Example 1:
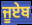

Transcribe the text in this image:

ਜੂਏਬ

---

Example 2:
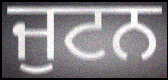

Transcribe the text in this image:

ਜੁਟਨ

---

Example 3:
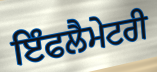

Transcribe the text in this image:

ਇੰਫਲੈਮੇਟਰੀ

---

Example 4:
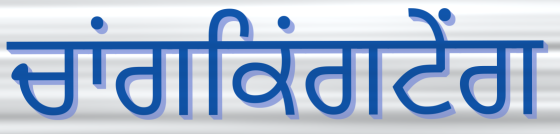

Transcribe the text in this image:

ਚਾਂਗਕਿਂਗਟੇਂਗ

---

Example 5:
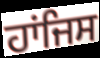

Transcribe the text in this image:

ਹਾਂਜਿਸ